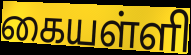
கையள்ளி